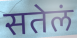
सतेलं